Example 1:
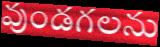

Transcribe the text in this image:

వుండగలను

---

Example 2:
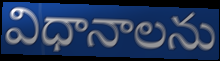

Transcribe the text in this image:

విధానాలను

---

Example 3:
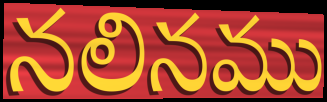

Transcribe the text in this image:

నలినము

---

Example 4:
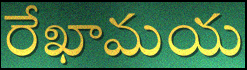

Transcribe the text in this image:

రేఖామయ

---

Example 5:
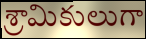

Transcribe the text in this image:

శ్రామికులుగా